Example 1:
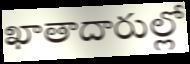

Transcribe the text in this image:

ఖాతాదారుల్లో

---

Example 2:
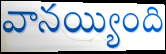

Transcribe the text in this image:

వానయ్యింది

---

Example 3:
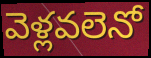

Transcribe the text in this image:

వెళ్లవలెనో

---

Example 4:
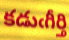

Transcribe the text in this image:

కడుఁగీర్తి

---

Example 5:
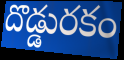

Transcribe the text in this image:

దొడ్డురకం